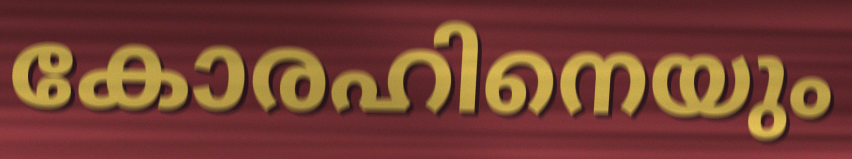
കോരഹിനെയും